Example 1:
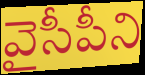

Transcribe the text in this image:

వైసీపీని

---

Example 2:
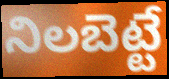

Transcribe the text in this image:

నిలబెట్టే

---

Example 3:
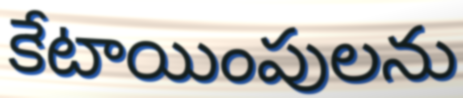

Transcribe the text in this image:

కేటాయింపులను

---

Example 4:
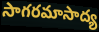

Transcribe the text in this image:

సాగరమాసాద్య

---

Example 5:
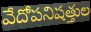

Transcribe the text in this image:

వేదోపనిషత్తుల